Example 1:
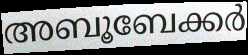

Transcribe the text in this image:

അബൂബേക്കർ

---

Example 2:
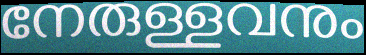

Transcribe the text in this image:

നേരുള്ളവനും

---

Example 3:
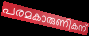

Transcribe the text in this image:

പരമകാരുണികന്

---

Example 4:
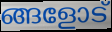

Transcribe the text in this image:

ങ്ങളോട്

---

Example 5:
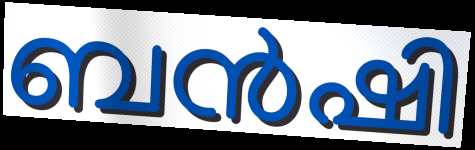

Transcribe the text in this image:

ബൻഷി